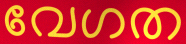
വേഗത